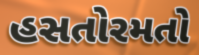
હસતોરમતો